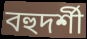
বহুদর্শী